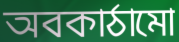
অবকাঠামো